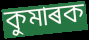
কুমাৰক